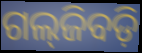
ଗଲ୍‌ଜିବଡ଼ି